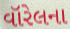
વૉરેલના